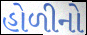
હોળીનો